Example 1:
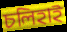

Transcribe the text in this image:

চলিহাই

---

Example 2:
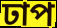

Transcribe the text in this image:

ঢাপ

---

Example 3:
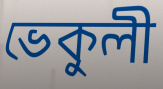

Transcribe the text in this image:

ভেকুলী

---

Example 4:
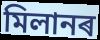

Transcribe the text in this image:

মিলানৰ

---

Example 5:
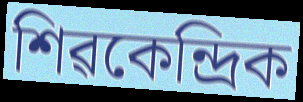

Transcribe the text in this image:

শিৱকেন্দ্ৰিক